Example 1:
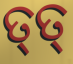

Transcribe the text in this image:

ତ୍‌ତ୍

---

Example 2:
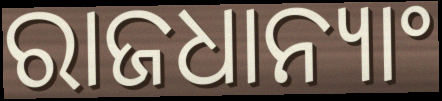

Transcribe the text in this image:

ରାଜଧାନ୍ୟାଂ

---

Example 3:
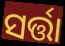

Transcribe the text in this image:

ସର୍ତ୍ତା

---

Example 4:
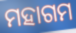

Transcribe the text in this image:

ମହାଗମ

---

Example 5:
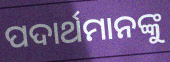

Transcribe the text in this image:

ପଦାର୍ଥମାନଙ୍କୁ